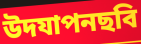
উদযাপনছবি